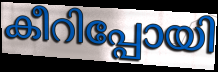
കീറിപ്പോയി